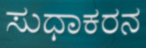
ಸುಧಾಕರನ